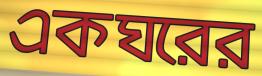
একঘরের